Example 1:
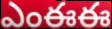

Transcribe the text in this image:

ఎంఈఈ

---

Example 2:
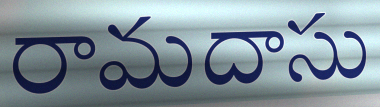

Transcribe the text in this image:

రామదాసు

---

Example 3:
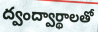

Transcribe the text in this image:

ద్వంద్వార్థాలతో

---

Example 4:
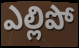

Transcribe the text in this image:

ఎల్లిపో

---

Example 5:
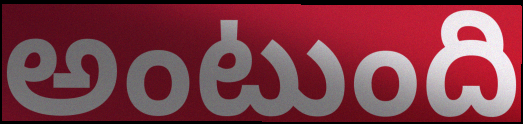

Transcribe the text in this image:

అంటుంది